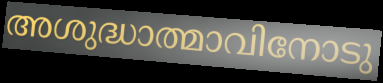
അശുദ്ധാത്മാവിനോടു